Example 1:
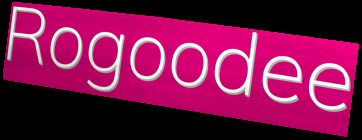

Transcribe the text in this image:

Rogoodee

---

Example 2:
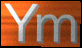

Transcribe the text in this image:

Ym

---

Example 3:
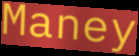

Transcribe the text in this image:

Maney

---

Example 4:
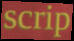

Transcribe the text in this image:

scrip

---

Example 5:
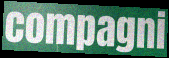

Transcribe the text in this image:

compagni